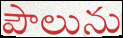
పౌలును